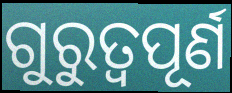
ଗୁରୁତ୍ୱପୂର୍ଣ